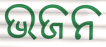
ଭଜନ